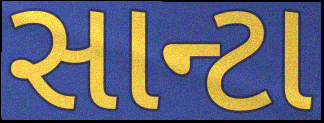
સાન્ટા